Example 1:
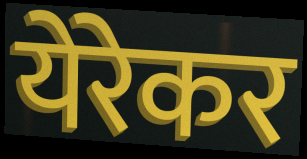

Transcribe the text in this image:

येरेकर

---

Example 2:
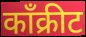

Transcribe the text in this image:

काँक्रीट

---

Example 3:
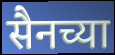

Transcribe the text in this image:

सैनच्या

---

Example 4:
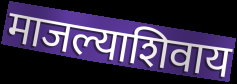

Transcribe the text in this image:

माजल्याशिवाय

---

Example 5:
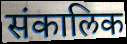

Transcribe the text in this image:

संकालिक